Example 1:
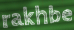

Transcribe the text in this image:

rakhbe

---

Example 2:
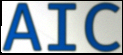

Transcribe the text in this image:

AIC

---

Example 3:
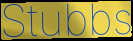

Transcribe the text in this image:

Stubbs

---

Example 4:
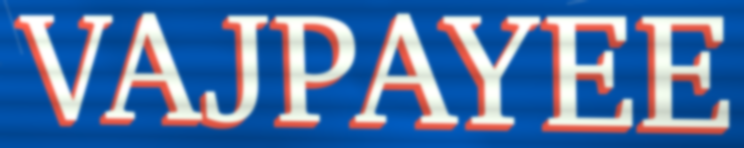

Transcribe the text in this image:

VAJPAYEE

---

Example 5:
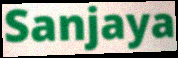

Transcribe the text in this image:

Sanjaya